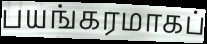
பயங்கரமாகப்